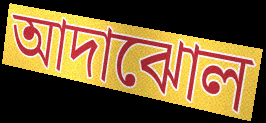
আদাঝোল